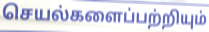
செயல்களைப்பற்றியும்